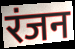
रंजन